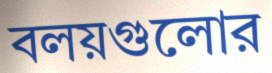
বলয়গুলোর